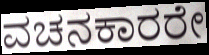
ವಚನಕಾರರೇ